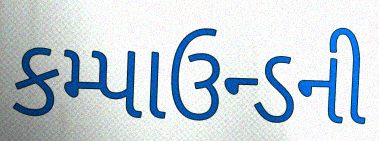
કમ્પાઉન્ડની